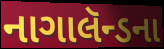
નાગાલૅન્ડના